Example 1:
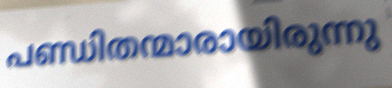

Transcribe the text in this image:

പണ്ഡിതന്മാരായിരുന്നു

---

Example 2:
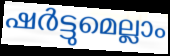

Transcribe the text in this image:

ഷർട്ടുമെല്ലാം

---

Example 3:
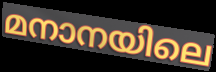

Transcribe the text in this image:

മനാനയിലെ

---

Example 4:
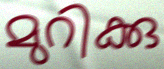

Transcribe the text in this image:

മുറിക്കു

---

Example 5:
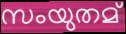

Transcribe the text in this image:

സംയുതമ്